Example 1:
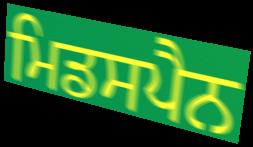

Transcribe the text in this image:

ਮਿਡਸਪੈਨ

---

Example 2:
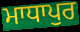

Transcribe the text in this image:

ਮਾਧਾਪੁਰ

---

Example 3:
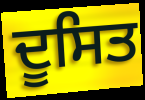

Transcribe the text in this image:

ਦੂਸਿਤ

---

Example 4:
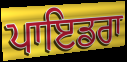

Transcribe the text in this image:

ਪਾਇਡਰਾ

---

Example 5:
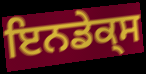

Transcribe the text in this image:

ਇਨਡੇਕ੍ਸ